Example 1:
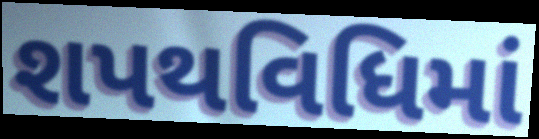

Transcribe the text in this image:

શપથવિધિમાં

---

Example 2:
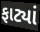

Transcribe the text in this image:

ફાટ્યાં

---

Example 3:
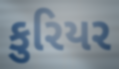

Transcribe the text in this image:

કુરિયર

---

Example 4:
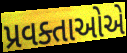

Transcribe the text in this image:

પ્રવક્તાઓએ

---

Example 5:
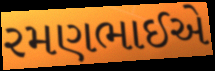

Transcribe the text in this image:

રમણભાઈએ